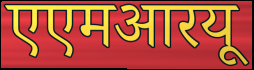
एएमआरयू